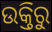
ଉକ୍ତିରୁ